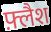
फ़्लैश